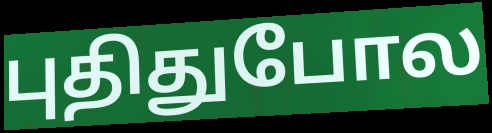
புதிதுபோல